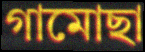
গামোছা